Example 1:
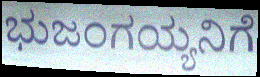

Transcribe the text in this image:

ಭುಜಂಗಯ್ಯನಿಗೆ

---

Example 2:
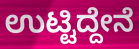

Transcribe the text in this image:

ಉಟ್ಟಿದ್ದೇನೆ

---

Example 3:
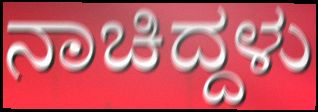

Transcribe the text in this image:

ನಾಚಿದ್ದಳು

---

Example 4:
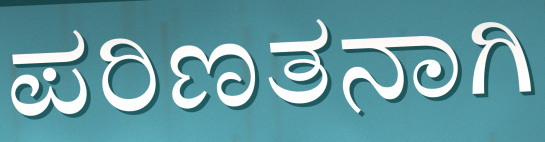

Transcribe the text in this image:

ಪರಿಣತನಾಗಿ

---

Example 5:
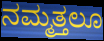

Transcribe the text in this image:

ನಮ್ಮತ್ತಲೂ